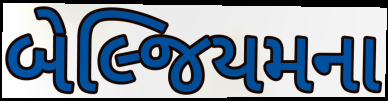
બેલ્જિયમના